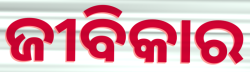
ଜୀବିକାର